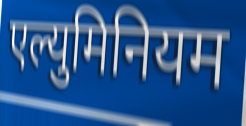
एल्युमिनियम